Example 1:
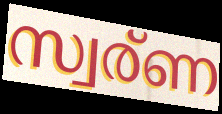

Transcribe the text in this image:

സ്വര്ണ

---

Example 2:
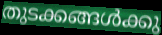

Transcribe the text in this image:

തുടക്കങ്ങൾക്കു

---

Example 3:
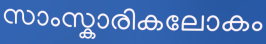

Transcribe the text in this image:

സാംസ്കാരികലോകം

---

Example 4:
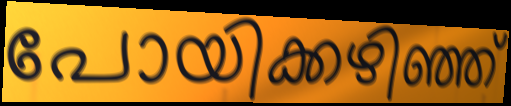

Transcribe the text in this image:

പോയിക്കഴിഞ്ഞ്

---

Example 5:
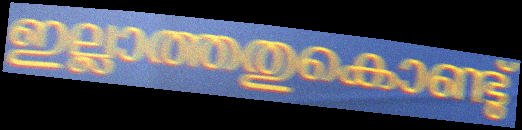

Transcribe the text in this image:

ഇല്ലാത്തതുകൊണ്ടു്